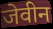
जेवीन